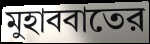
মুহাববাতের